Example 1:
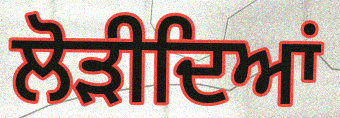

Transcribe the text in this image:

ਲੋੜੀਦਿਆਂ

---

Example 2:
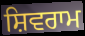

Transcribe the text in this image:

ਸ਼ਿਵਰਾਮ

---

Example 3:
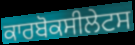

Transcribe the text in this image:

ਕਾਰਬੋਕਸੀਲੇਟਸ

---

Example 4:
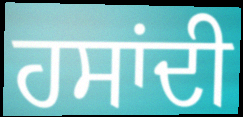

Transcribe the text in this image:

ਹਸਾਂਦੀ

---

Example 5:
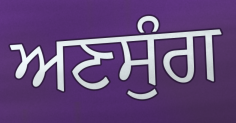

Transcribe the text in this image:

ਅਣਸੁੰਗ